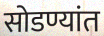
सोडण्यांत